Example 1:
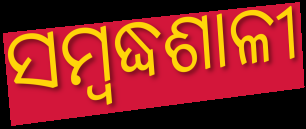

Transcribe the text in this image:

ସମ୍ବଦ୍ଧଶାଳୀ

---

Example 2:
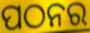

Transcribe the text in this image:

ପଠନର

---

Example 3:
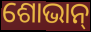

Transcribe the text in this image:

ଶୋଭାନ୍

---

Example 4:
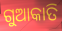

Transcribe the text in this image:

ଗୁଆକାତି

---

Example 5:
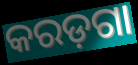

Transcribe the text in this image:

କରଡ଼ଗା